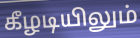
கீழடியிலும்